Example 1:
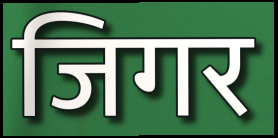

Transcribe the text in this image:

जिगर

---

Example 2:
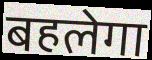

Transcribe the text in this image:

बहलेगा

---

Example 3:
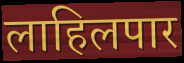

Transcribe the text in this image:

लाहिलपार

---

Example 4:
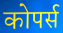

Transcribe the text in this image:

कोपर्स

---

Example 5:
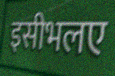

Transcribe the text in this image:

इसीभलए